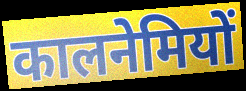
कालनेमियों